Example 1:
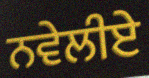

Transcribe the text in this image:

ਨਵੇਲੀਏ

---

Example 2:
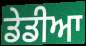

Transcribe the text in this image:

ਡੇਡੀਆ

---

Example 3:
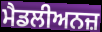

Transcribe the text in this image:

ਮੈਡਲੀਅਨਜ਼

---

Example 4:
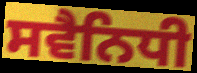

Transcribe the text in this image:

ਸਵੈਨਿਧੀ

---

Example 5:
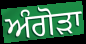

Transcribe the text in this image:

ਅੰਗੋੜਾ